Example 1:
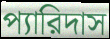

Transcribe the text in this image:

প্যারিদাস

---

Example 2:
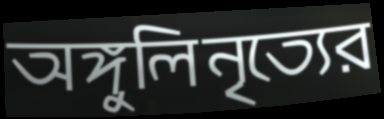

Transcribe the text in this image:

অঙ্গুলিনৃত্যের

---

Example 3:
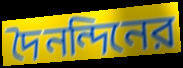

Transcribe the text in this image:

দৈনন্দিনের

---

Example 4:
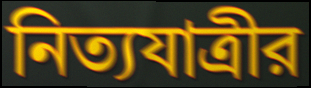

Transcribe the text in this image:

নিত্যযাত্রীর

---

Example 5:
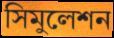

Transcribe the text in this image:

সিমুলেশন